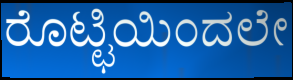
ರೊಟ್ಟಿಯಿಂದಲೇ